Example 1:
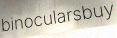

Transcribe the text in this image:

binocularsbuy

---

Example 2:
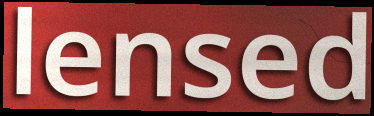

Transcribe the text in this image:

lensed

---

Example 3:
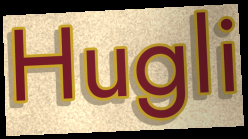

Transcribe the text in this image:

Hugli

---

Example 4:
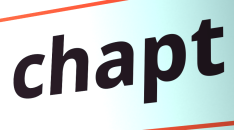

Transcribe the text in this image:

chapt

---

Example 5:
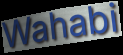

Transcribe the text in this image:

Wahabi